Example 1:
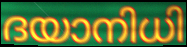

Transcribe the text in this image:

ദയാനിധി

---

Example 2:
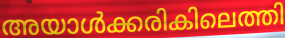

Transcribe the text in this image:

അയാൾക്കരികിലെത്തി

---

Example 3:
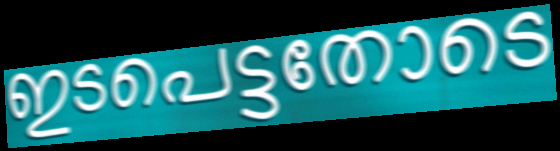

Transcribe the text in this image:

ഇടപെട്ടതോടെ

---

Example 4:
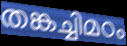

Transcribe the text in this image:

തങ്കച്ചിമഠം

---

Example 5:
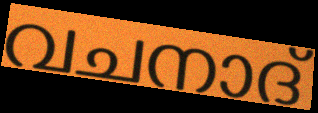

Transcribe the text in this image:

വചനാദ്